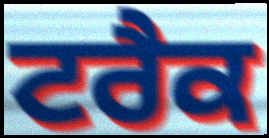
ਟਰੈਕ